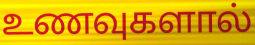
உணவுகளால்